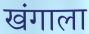
खंगाला